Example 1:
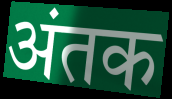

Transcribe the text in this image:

अंतक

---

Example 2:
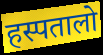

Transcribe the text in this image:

हस्पतालो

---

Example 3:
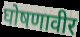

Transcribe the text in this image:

घोषणावीर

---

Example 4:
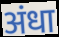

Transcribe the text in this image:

अंधा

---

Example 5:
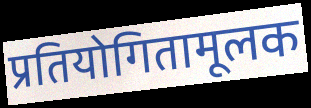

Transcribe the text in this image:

प्रतियोगितामूलक